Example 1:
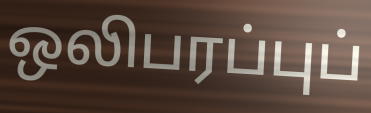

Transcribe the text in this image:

ஒலிபரப்புப்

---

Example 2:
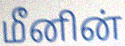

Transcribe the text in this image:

மீனின்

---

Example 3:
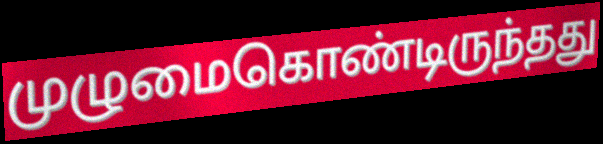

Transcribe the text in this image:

முழுமைகொண்டிருந்தது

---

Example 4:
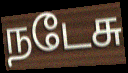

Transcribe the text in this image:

நடேசு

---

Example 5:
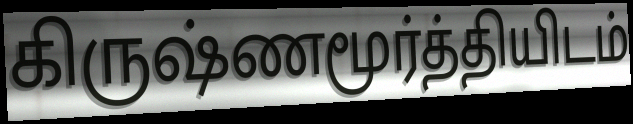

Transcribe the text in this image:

கிருஷ்ணமூர்த்தியிடம்